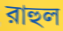
রাহুল